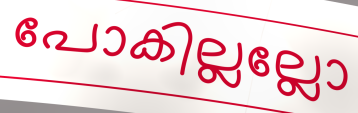
പോകില്ലല്ലോ